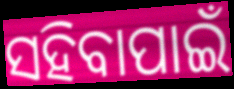
ସହିବାପାଇଁ